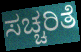
ಸಚ್ಚರಿತೆ